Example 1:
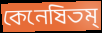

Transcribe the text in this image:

কেনেষিতম্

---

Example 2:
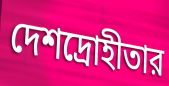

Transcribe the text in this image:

দেশদ্রোহীতার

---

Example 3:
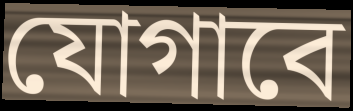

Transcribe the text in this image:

যোগাবে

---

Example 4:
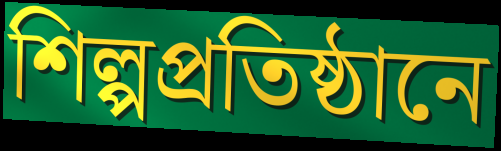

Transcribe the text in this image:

শিল্পপ্রতিষ্ঠানে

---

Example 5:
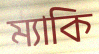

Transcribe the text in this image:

ম্যাকি